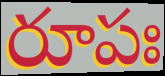
రూపః